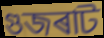
গুজৰাট